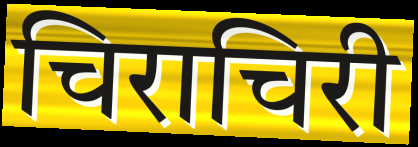
चिराचिरी